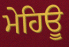
ਮੇਹਿਊ